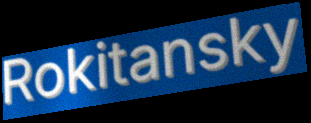
Rokitansky